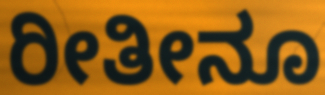
ರೀತೀನೂ